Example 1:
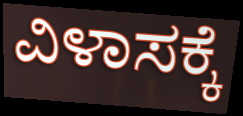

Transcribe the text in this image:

ವಿಳಾಸಕ್ಕೆ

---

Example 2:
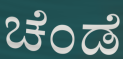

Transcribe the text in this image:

ಚೆಂಡೆ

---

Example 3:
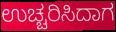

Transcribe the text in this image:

ಉಚ್ಚರಿಸಿದಾಗ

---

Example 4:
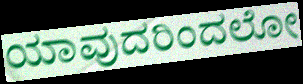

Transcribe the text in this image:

ಯಾವುದರಿಂದಲೋ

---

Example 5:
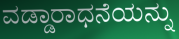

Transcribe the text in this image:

ವಡ್ಡಾರಾಧನೆಯನ್ನು